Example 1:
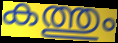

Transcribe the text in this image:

കത്തും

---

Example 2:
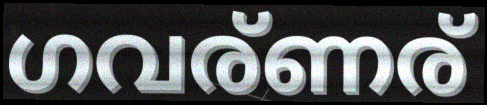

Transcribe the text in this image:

ഗവര്ണര്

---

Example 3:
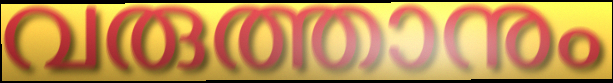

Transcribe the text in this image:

വരുത്താനും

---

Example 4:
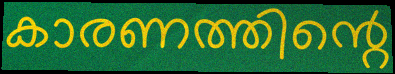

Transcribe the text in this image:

കാരണത്തിന്റെ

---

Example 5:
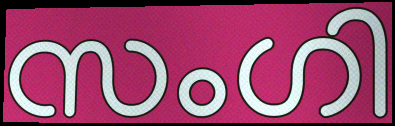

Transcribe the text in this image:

സംഗി